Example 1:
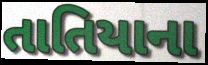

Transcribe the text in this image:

તાતિયાના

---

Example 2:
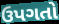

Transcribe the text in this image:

ઉપગતો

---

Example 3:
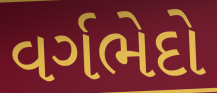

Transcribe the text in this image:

વર્ગભેદો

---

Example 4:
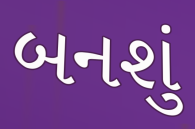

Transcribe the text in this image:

બનશું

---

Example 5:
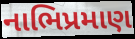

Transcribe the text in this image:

નાભિપ્રમાણ